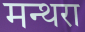
मन्थरा